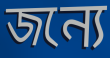
জন্যে